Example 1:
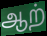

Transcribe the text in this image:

ஆற்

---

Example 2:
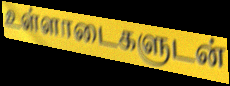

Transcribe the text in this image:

உள்ளாடைகளுடன்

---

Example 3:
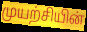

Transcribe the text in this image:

முயற்சியின்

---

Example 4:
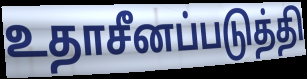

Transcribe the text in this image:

உதாசீனப்படுத்தி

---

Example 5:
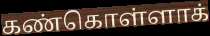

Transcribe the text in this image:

கண்கொள்ளாக்